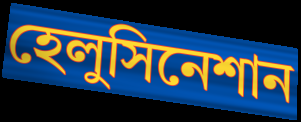
হেলুসিনেশান